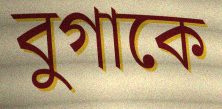
বুগাকে